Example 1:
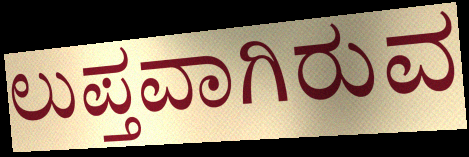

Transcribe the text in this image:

ಲುಪ್ತವಾಗಿರುವ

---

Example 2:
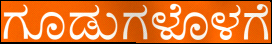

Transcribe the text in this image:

ಗೂಡುಗಳೊಳಗೆ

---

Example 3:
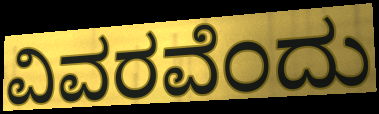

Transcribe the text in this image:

ವಿವರವೆಂದು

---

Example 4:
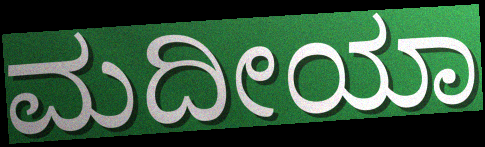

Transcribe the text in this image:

ಮದೀಯಾ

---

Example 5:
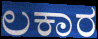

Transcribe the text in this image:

ಲಕಾರ